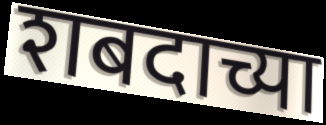
शबदाच्या